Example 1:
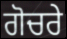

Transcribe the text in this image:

ਗੋਚਰੇ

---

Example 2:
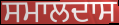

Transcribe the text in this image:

ਸਮਾਲਦਾਸ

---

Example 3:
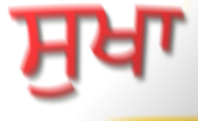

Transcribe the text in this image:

ਸੁਖਾ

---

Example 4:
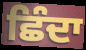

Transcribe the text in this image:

ਛਿੰਦਾ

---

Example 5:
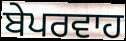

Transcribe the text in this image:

ਬੇਪਰਵਾਹ